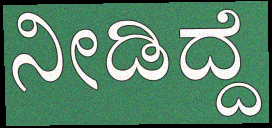
ನೀಡಿದ್ದೆ